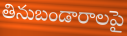
తినుబండారాలపై